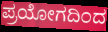
ಪ್ರಯೋಗದಿಂದ